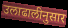
उलाढालीनुसार